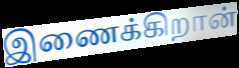
இணைக்கிறான்